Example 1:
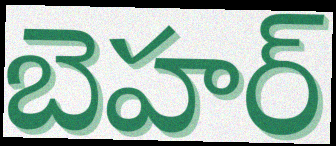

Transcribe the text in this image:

బెహర్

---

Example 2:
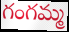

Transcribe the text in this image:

గంగమ్మ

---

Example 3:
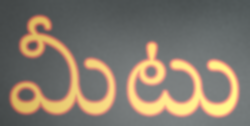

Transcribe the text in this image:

మీటు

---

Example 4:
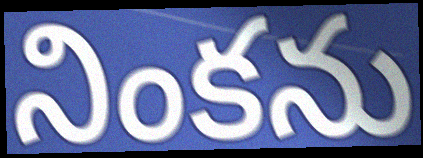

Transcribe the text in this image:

నింకను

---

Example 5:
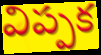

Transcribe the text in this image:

విప్పక